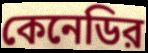
কেনেডির